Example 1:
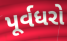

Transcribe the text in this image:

પૂર્વધરો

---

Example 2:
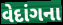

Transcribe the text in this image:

વેદાંગના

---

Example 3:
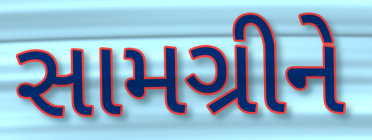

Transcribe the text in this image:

સામગ્રીને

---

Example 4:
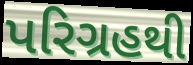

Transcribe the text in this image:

પરિગ્રહથી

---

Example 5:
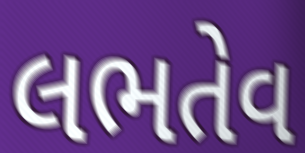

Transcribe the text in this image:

લભતેવ